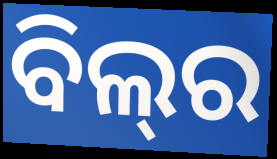
ବିଲ୍‌ର